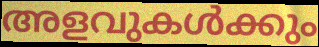
അളവുകൾക്കും